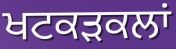
ਖਟਕੜਕਲਾਂ